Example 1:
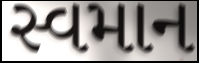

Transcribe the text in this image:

સ્વમાન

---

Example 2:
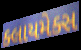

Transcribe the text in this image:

ક્લાયમેક્સ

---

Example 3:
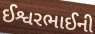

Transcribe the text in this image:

ઈશ્વરભાઈની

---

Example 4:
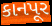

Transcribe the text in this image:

કાનપૂર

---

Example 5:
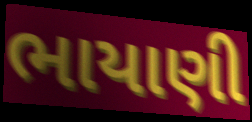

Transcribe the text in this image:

ભાયાણી